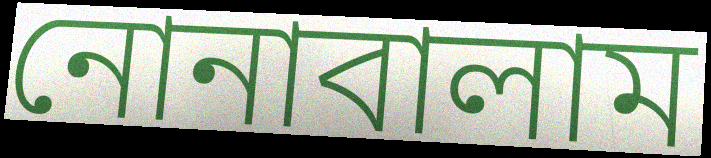
নোনাবালাম